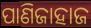
ପାଣିଜାହାଜ